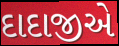
દાદાજીએ